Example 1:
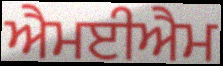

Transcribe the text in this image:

ਐਮਈਐਮ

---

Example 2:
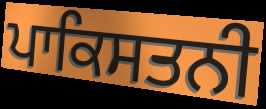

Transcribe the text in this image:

ਪਾਕਿਸਤਨੀ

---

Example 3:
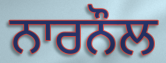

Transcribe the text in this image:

ਨਾਰਨੌਲ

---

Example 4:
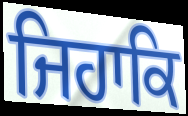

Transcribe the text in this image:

ਜਿਹਾਕਿ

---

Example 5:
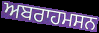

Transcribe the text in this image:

ਅਬਰਾਹਮਸਨ